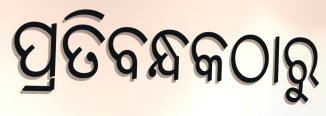
ପ୍ରତିବନ୍ଧକଠାରୁ